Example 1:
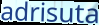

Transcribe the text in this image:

adrisuta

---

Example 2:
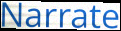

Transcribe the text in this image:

Narrate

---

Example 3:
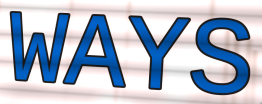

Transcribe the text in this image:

WAYS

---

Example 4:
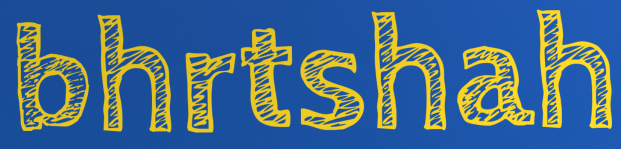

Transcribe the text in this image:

bhrtshah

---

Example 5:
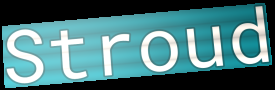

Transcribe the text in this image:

Stroud